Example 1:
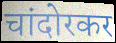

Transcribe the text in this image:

चांदोरकर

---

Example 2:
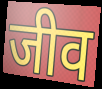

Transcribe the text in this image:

जीव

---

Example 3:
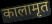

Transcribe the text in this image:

कालामृत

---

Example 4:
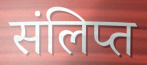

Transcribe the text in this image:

संलिप्त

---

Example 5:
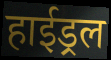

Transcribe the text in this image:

हाईड्रल